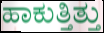
ಹಾಕುತ್ತಿತ್ತು